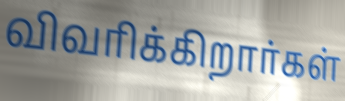
விவரிக்கிறார்கள்